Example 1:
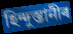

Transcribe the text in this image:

হিন্দুস্তানীৰ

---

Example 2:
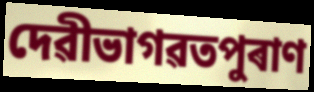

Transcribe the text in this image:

দেৱীভাগৱতপুৰাণ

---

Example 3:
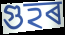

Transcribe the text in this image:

গুহৰ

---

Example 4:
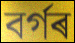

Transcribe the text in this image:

বৰ্গৰ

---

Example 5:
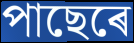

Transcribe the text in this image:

পাছেৰে